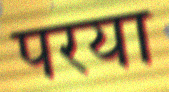
परया